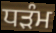
ਧੜੰਮ